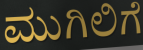
ಮುಗಿಲಿಗೆ